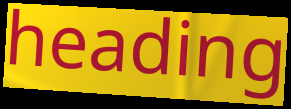
heading